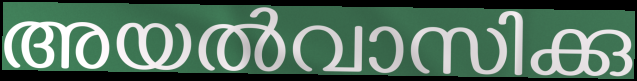
അയൽവാസിക്കു